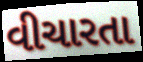
વીચારતા